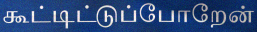
கூட்டிட்டுப்போறேன்